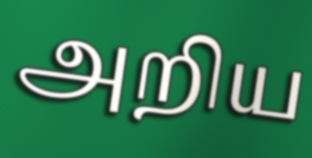
அறிய